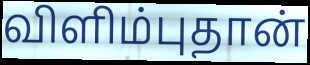
விளிம்புதான்